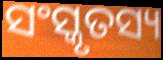
ସଂସ୍କୃତସ୍ୟ